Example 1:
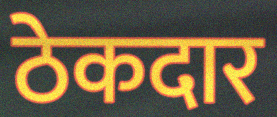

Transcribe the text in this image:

ठेकदार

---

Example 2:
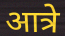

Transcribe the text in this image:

आत्रे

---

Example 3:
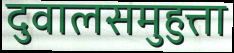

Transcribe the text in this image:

दुवालसमुहुत्ता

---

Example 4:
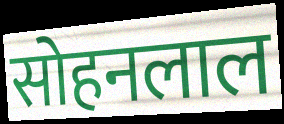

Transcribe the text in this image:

सोहनलाल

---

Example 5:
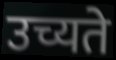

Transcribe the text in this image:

उच्यते